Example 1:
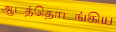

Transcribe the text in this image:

ஆடத்தொடங்கிய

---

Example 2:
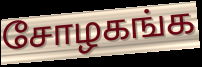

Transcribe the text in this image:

சோழகங்க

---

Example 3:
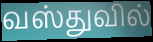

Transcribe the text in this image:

வஸ்துவில்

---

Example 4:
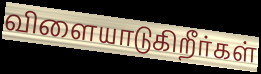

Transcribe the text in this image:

விளையாடுகிறீர்கள்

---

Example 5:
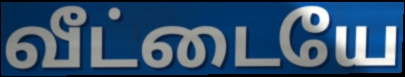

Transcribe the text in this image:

வீட்டையே